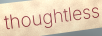
thoughtless